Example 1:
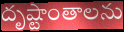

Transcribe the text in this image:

దృష్టాంతాలను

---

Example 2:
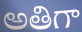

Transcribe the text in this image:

అతిగా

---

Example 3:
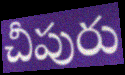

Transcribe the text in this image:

చీపురు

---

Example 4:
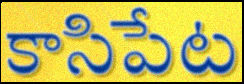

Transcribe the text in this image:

కాసిపేట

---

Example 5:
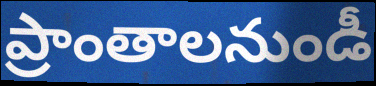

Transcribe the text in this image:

ప్రాంతాలనుండీ